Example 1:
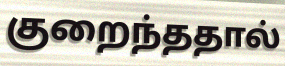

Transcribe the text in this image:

குறைந்ததால்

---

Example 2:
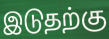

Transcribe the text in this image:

இடுதற்கு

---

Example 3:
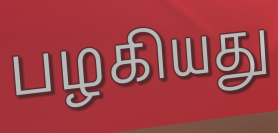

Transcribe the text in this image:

பழகியது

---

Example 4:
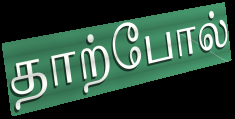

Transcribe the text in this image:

தாற்போல்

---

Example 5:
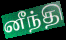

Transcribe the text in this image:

னீந்தி